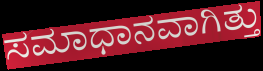
ಸಮಾಧಾನವಾಗಿತ್ತು